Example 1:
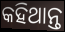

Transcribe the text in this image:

କହିଥାନ୍ତ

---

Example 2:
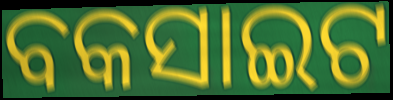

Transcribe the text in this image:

ବକସାଇଟ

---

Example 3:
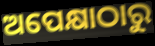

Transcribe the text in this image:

ଅପେକ୍ଷାଠାରୁ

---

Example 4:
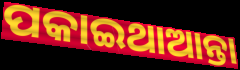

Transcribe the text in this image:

ପକାଇଥାଆନ୍ତା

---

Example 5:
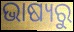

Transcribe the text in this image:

ଭାଷ୍ୟରୁ